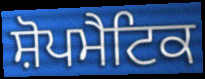
ਸ਼ੋਪਮੈਟਿਕ